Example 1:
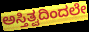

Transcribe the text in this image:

ಅಸ್ತಿತ್ವದಿಂದಲೇ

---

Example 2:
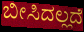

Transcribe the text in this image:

ಬೀಸಿದಲ್ಲದೆ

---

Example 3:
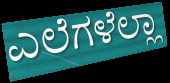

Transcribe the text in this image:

ಎಲೆಗಳೆಲ್ಲಾ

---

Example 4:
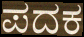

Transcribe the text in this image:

ಪದಕ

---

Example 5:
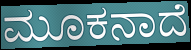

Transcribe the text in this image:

ಮೂಕನಾದೆ